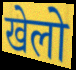
खेलो